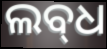
ଲବ୍‍ଧ